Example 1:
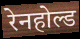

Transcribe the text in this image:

रेनहोल्ड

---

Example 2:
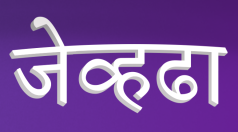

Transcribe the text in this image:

जेव्हढा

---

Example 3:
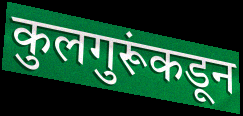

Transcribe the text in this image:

कुलगुरूंकडून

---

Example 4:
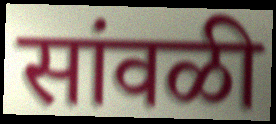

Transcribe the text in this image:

सांवळी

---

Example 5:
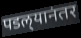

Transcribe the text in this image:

पडल्यानंतर